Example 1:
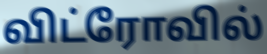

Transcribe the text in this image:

விட்ரோவில்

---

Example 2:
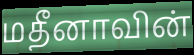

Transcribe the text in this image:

மதீனாவின்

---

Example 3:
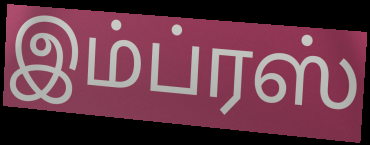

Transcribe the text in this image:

இம்ப்ரஸ்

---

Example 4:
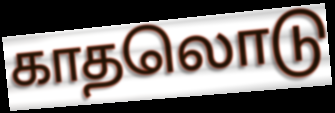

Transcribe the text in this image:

காதலொடு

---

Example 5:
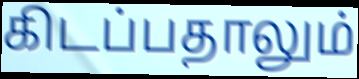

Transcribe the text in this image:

கிடப்பதாலும்